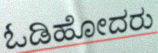
ಓಡಿಹೋದರು